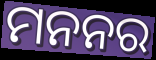
ମନନର